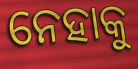
ନେହାକୁ